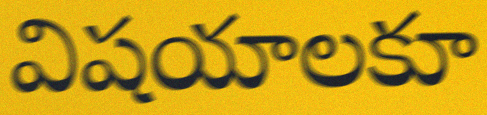
విషయాలకూ